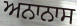
ਅਨਾਨਾਸ